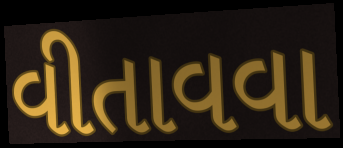
વીતાવવા